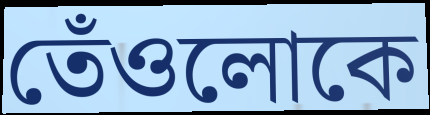
তেঁওলোকে